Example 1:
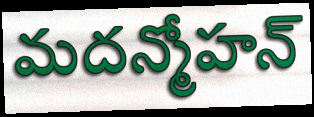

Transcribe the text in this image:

మదన్మోహన్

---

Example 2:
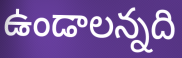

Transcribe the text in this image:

ఉండాలన్నది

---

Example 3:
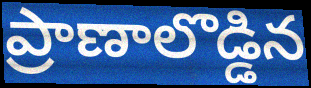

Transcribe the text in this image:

ప్రాణాలొడ్డిన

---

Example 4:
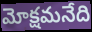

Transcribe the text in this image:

మోక్షమనేది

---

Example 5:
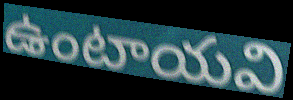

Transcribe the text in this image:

ఉంటాయవి